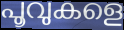
പൂവുകളെ